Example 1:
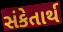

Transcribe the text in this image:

સંકેતાર્થ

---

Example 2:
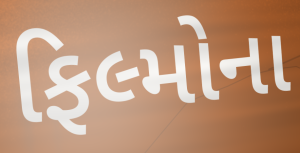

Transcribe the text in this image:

ફિલ્મોના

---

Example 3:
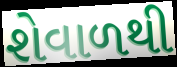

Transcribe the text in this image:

શેવાળથી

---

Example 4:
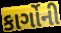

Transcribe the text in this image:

કાર્ગોની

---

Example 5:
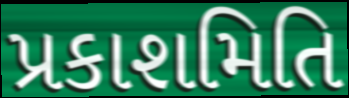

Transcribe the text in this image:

પ્રકાશમિતિ